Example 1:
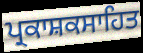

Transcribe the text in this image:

ਪ੍ਰਕਾਸ਼ਕਸਾਹਿਤ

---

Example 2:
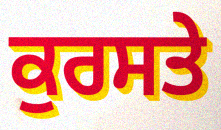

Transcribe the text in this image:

ਕੁਰਸਤੇ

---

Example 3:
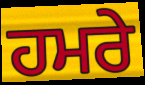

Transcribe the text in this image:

ਹਮਰੇ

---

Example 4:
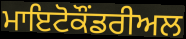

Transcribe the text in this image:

ਮਾਇਟੋਕੌਂਡਰੀਅਲ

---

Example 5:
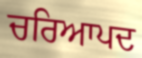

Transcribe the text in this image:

ਚਰਿਆਪਦ